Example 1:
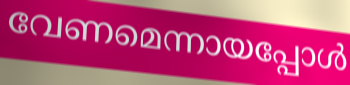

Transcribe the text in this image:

വേണമെന്നായപ്പോൾ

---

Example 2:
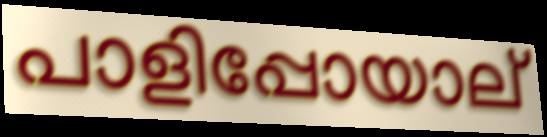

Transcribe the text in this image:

പാളിപ്പോയാല്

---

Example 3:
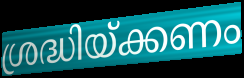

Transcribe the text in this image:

ശ്രദ്ധിയ്ക്കണം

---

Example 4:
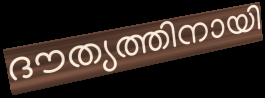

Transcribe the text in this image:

ദൗത്യത്തിനായി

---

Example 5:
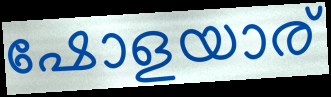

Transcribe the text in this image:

ഷോളയാര്